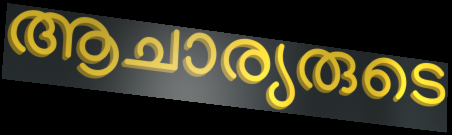
ആചാര്യരുടെ